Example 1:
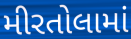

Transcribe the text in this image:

મીરતોલામાં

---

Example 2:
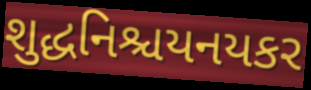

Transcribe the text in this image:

શુદ્ધનિશ્ચયનયકર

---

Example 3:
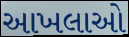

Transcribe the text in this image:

આખલાઓ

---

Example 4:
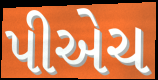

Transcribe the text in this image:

પીએચ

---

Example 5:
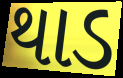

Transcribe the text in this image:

થાડ